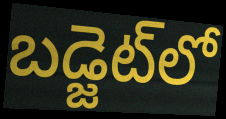
బడ్జెట్‌లో